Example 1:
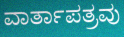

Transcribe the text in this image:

ವಾರ್ತಾಪತ್ರವು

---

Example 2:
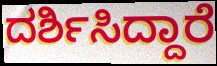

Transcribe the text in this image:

ದರ್ಶಿಸಿದ್ದಾರೆ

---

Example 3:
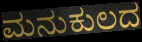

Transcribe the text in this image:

ಮನುಕುಲದ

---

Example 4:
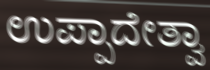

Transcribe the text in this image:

ಉಪ್ಪಾದೇತ್ವಾ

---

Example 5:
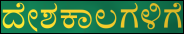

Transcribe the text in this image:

ದೇಶಕಾಲಗಳಿಗೆ